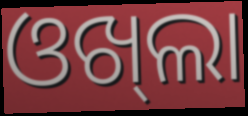
ଓଖ୍‌ଲା